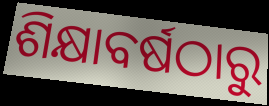
ଶିକ୍ଷାବର୍ଷଠାରୁ